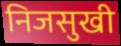
निजसुखी